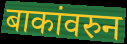
बाकांवरुन